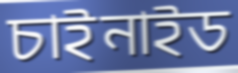
চাইনাইড